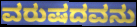
ವರುಷದವನು